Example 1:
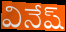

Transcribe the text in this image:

వినేష్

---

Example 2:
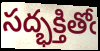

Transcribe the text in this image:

సద్భక్తితోఁ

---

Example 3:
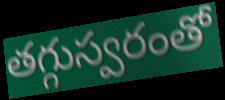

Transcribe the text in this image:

తగ్గుస్వరంతో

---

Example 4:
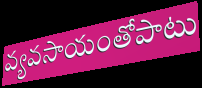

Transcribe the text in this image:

వ్యవసాయంతోపాటు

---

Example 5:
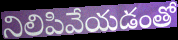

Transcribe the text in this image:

నిలిపివేయడంతో